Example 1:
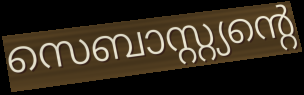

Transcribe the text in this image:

സെബാസ്റ്റ്യന്റെ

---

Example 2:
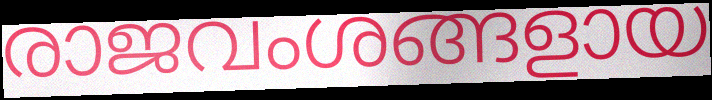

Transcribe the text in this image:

രാജവംശങ്ങളായ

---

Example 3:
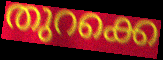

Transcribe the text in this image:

തുറക്കെ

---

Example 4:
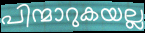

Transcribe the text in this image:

പിന്മാറുകയല്ല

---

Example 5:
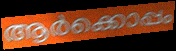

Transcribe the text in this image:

ആർക്കൊപ്പം